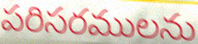
పరిసరములను